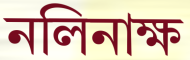
নলিনাক্ষ